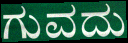
ಗುವದು